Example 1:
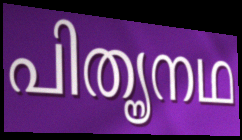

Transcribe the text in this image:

പിതൄനഥ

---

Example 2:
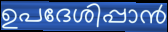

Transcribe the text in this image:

ഉപദേശിപ്പാൻ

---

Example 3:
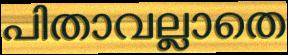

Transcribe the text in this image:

പിതാവല്ലാതെ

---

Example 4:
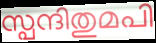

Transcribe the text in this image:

സ്പന്ദിതുമപി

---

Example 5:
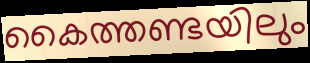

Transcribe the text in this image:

കൈത്തണ്ടയിലും